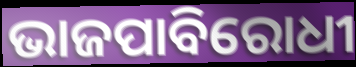
ଭାଜପାବିରୋଧୀ